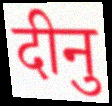
दीनु